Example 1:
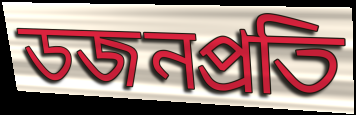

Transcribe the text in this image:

ডজনপ্রতি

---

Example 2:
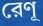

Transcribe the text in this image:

রেণূ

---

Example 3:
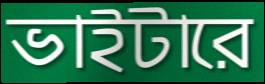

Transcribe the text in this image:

ভাইটারে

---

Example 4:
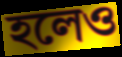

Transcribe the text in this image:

হলেও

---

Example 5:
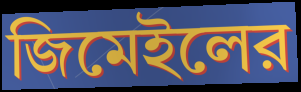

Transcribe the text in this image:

জিমেইলের